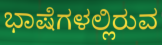
ಭಾಷೆಗಳಲ್ಲಿರುವ